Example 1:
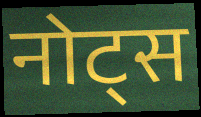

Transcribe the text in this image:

नोट्स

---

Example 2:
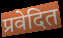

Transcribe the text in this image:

प्रवेदित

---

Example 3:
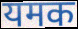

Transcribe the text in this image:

यमक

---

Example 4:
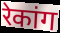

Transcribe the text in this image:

रेकांग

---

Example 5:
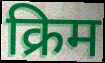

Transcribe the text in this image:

क्रिम